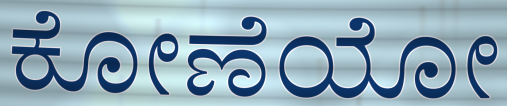
ಕೋಣೆಯೋ